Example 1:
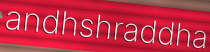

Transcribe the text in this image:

andhshraddha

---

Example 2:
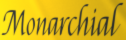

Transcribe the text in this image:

Monarchial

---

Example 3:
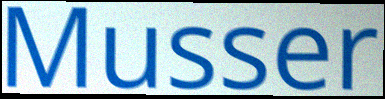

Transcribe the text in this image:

Musser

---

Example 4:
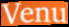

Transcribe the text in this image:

Venu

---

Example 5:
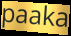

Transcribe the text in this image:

paaka